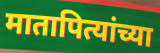
मातापित्यांच्या